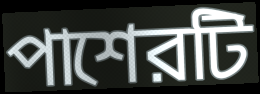
পাশেরটি